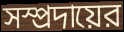
সস্প্রদায়ের